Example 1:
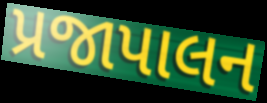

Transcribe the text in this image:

પ્રજાપાલન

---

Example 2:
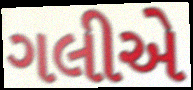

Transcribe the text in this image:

ગલીએ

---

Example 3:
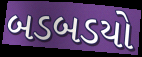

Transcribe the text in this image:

બડબડયો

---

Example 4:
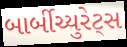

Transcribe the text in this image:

બાર્બીચ્યુરેટ્સ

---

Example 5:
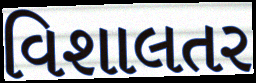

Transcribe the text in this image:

વિશાલતર